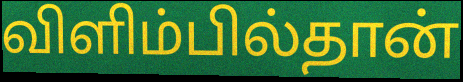
விளிம்பில்தான்